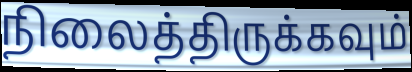
நிலைத்திருக்கவும்